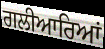
ਗਲੀਆਰਿਆਂ